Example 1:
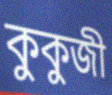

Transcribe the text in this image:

কুকুজী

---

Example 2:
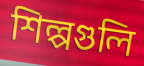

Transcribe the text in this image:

শিল্পগুলি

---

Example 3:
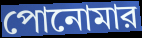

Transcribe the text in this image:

পোনোমার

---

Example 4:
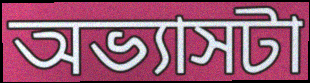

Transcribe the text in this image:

অভ্যাসটা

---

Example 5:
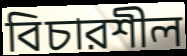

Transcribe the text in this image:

বিচারশীল